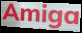
Amiga